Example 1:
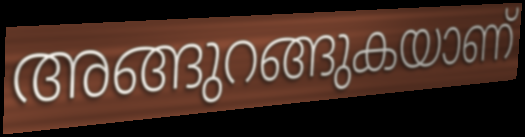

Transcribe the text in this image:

അങ്ങുറങ്ങുകയാണ്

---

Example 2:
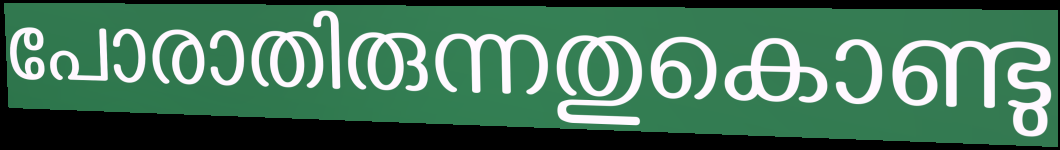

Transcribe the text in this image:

പോരാതിരുന്നതുകൊണ്ടു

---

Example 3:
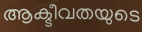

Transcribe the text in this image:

ആക്ടീവതയുടെ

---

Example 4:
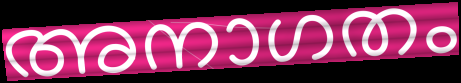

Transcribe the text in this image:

അനാഗതം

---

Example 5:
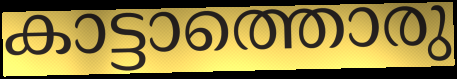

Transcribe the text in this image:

കാട്ടാത്തൊരു